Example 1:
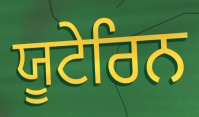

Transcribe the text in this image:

ਯੂਟੇਰਿਨ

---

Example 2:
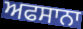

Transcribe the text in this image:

ਅਫਸਾਨਾ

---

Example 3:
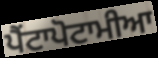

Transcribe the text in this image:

ਪੈਂਟਾਪੋਟਾਮੀਆ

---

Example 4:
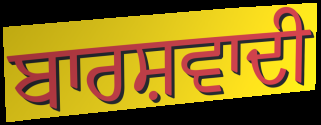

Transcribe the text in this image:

ਬਾਰਸ਼ਵਾਦੀ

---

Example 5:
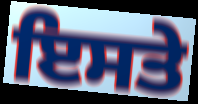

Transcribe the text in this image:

ਇਸਤੇ